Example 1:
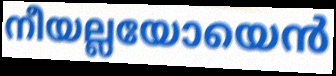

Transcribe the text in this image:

നീയല്ലയോയെൻ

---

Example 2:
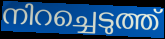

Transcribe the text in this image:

നിറച്ചെടുത്ത്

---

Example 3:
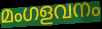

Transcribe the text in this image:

മംഗളവനം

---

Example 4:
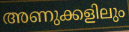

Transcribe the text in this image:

അണുക്കളിലും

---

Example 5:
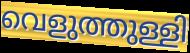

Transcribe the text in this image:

വെളുത്തുള്ളി